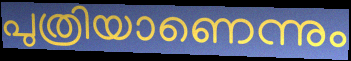
പുത്രിയാണെന്നും